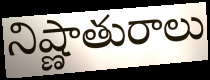
నిష్ణాతురాలు